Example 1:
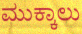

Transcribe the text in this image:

ಮುಕ್ಕಾಲು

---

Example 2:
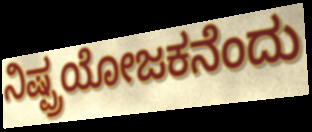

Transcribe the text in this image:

ನಿಷ್ಪ್ರಯೋಜಕನೆಂದು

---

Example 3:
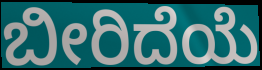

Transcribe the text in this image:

ಬೀರಿದೆಯೆ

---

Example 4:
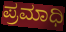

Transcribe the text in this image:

ಪ್ರಮಾಧಿ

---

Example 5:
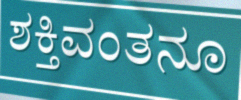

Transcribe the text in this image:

ಶಕ್ತಿವಂತನೂ